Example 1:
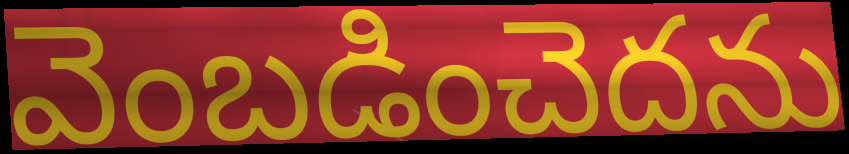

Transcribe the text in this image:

వెంబడించెదను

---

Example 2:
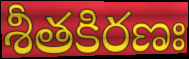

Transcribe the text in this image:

శీతకిరణః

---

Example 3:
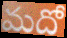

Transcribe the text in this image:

మదో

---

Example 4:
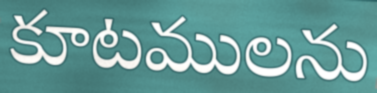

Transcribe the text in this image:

కూటములను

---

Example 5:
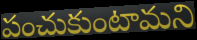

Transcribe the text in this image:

పంచుకుంటామని